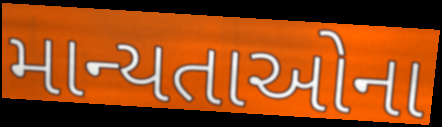
માન્યતાઓના